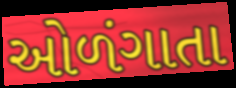
ઓળંગાતા